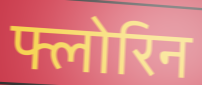
फ्लोरिन